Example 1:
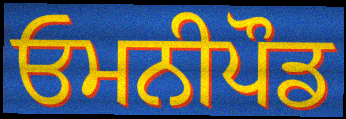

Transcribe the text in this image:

ਓਮਨੀਪੌਡ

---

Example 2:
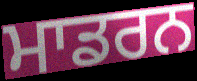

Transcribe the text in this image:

ਮਾਡਰਨ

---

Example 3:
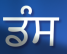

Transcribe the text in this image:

ਡੰਸ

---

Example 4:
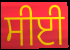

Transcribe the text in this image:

ਸੀਈ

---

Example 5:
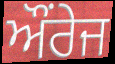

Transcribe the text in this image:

ਔਂਰੇਜ